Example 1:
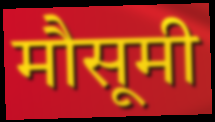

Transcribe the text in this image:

मौसूमी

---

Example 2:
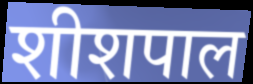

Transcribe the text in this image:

शीशपाल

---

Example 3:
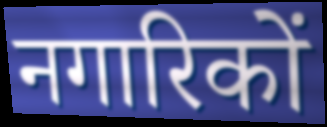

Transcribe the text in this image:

नगारिकों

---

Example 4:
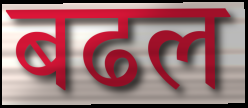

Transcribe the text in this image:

बढल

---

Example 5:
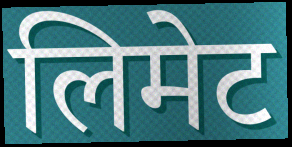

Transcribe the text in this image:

लिमेट